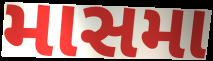
માસમા